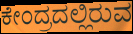
ಕೇಂದ್ರದಲ್ಲಿರುವ